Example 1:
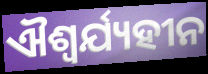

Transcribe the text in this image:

ଐଶ୍ୱର୍ଯ୍ୟହୀନ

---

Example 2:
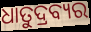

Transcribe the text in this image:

ଧାତୁଦ୍ରବ୍ୟର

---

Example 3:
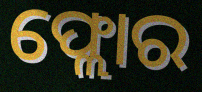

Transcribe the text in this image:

ଫ୍ଲୋର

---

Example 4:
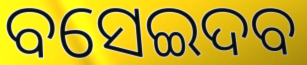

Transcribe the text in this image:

ବସେଇଦବ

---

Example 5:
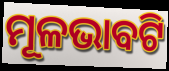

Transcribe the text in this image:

ମୂଳଭାବଟି